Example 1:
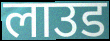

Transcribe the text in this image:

लाउड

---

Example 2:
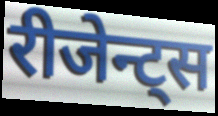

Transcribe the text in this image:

रीजेन्ट्स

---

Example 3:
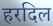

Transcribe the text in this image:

हरदिल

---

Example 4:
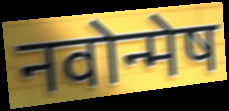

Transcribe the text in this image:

नवोन्‍मेष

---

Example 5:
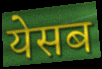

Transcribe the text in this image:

येसब